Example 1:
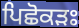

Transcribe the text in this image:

ਪਿਛੋਕੜਃ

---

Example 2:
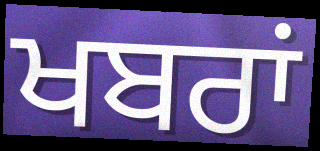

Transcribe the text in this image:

ਖਬਰਾਂ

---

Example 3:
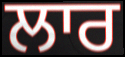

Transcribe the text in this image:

ਲਾਰ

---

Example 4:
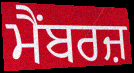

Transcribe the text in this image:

ਮੈਂਬਰਜ਼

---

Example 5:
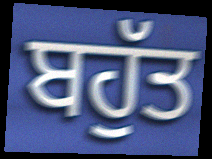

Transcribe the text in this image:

ਬਹੁੱਤ